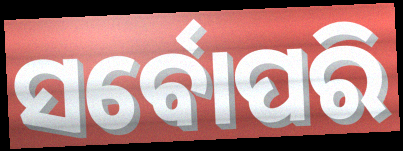
ସର୍ବୋପରି